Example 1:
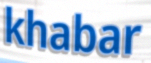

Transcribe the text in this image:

khabar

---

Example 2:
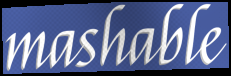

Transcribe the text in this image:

mashable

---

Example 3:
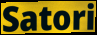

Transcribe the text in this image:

Satori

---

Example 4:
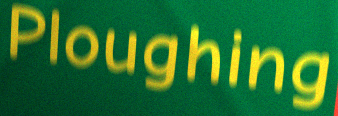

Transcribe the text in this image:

Ploughing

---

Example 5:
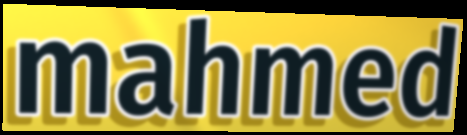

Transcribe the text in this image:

mahmed